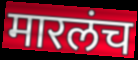
मारलंच